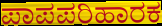
ಪಾಪಪರಿಹಾರಕ